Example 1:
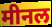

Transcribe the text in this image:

मीनल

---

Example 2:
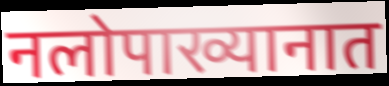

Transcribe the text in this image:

नलोपाख्यानात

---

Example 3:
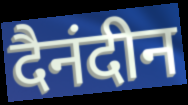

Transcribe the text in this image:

दैनंदीन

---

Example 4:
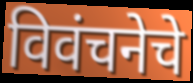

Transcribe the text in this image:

विवंचनेचे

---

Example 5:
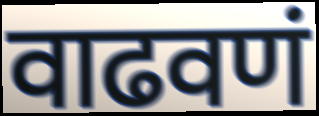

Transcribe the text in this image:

वाढवणं